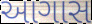
આગાસ